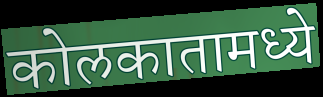
कोलकातामध्ये